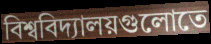
বিশ্ববিদ্যালয়গুলোতে